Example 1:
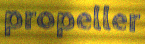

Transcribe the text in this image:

propeller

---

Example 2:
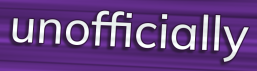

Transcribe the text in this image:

unofficially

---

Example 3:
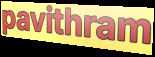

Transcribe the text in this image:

pavithram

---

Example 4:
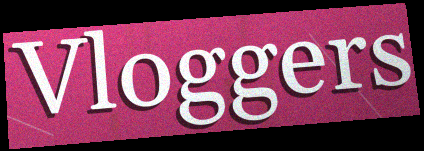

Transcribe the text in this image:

Vloggers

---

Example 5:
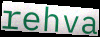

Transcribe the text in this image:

rehva